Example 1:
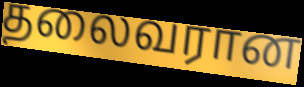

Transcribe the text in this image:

தலைவரான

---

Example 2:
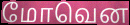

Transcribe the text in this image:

மோவென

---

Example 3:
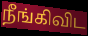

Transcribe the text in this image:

நீங்கிவிட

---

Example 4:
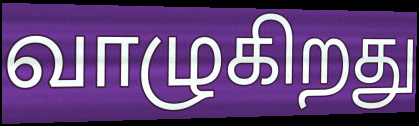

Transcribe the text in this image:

வாழுகிறது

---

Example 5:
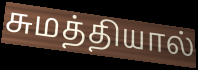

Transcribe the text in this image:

சுமத்தியால்